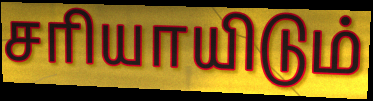
சரியாயிடும்